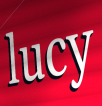
lucy